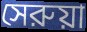
সেরুয়া